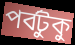
পর্বটুকু